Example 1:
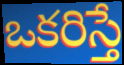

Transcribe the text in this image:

ఒకరిస్తే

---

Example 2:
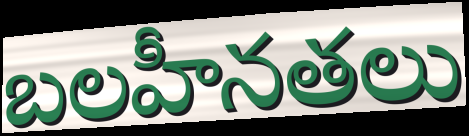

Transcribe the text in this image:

బలహీనతలు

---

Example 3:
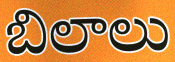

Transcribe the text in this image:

బిలాలు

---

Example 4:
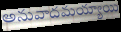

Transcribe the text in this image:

అనువాదమయ్యాయి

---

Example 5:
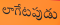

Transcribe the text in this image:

లాగేటపుడు